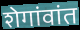
शेगांवांत